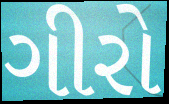
ગીરો